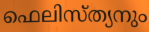
ഫെലിസ്ത്യനും